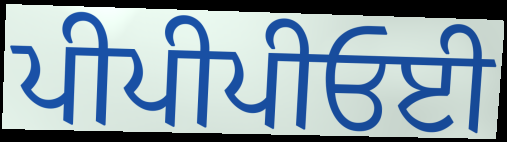
ਪੀਪੀਪੀਓਈ